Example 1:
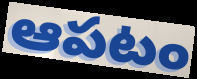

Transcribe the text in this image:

ఆపటం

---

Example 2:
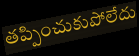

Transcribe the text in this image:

తప్పించుకుపోలేదు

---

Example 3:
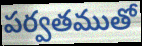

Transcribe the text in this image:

పర్వతముతో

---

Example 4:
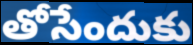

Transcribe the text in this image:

తోసేందుకు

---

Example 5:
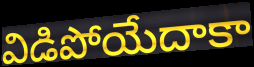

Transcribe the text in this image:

విడిపోయేదాకా